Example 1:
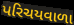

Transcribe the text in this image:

પરિચયવાળા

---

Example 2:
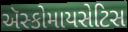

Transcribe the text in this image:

ઍસ્કોમાયસેટિસ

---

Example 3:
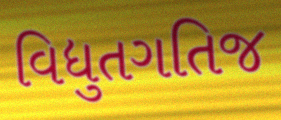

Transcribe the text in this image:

વિદ્યુતગતિજ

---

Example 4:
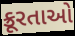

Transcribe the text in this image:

ક્રૂરતાઓ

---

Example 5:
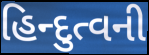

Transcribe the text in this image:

હિન્દુત્વની